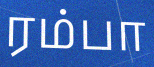
ரம்பா